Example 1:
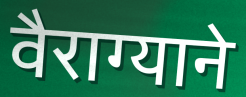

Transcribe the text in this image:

वैराग्याने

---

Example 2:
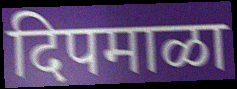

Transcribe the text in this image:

दिपमाळा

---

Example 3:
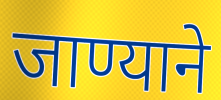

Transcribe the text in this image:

जाण्याने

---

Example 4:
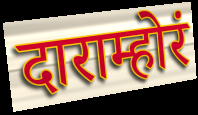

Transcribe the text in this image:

दाराम्होरं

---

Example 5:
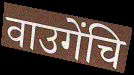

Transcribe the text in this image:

वाउगेंचि